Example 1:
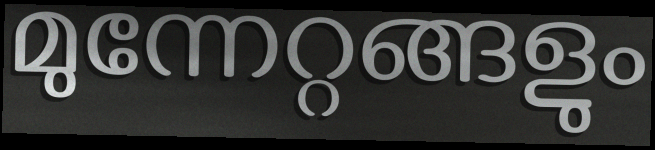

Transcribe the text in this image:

മുന്നേറ്റങ്ങളും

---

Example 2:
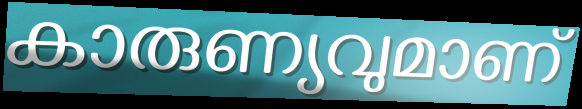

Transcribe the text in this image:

കാരുണ്യവുമാണ്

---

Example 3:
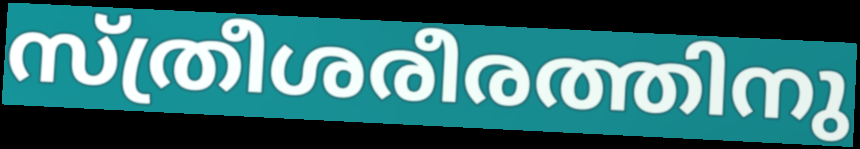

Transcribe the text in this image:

സ്ത്രീശരീരത്തിനു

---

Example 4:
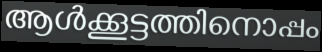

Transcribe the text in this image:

ആൾക്കൂട്ടത്തിനൊപ്പം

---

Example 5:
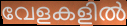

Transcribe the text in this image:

വേളകളിൽ